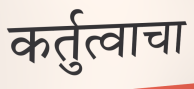
कर्तुत्वाचा